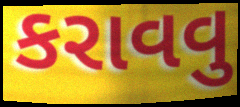
કરાવવુ